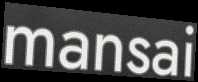
mansai